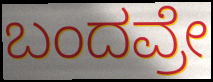
ಬಂದವ್ರೇ